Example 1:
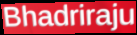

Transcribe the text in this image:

Bhadriraju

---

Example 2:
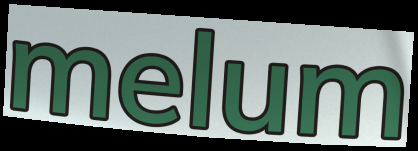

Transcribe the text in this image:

melum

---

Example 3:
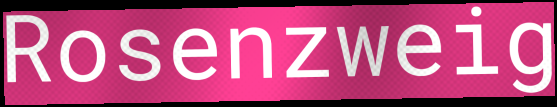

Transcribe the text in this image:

Rosenzweig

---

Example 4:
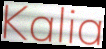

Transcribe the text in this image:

Kalia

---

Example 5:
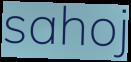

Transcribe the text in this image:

sahoj